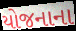
યોજનાના